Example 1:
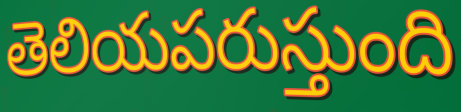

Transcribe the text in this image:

తెలియపరుస్తుంది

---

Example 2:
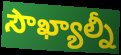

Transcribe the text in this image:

సౌఖ్యాల్నీ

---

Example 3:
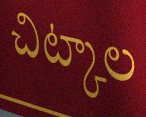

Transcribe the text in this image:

చిట్కాల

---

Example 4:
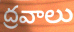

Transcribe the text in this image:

ద్రవాలు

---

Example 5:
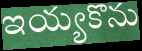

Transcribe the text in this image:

ఇయ్యకొను